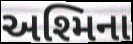
અશ્મિના